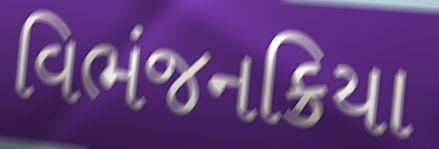
વિભંજનક્રિયા